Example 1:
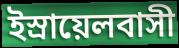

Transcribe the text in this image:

ইস্রায়েলবাসী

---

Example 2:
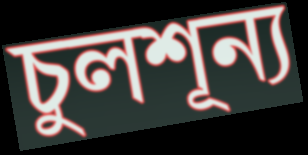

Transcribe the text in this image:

চুলশূন্য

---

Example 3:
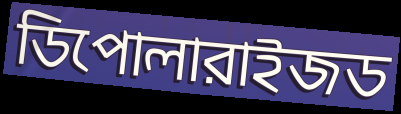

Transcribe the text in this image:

ডিপোলারাইজড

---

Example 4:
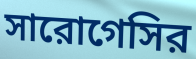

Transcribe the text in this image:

সারোগেসির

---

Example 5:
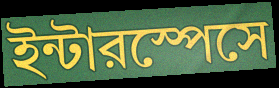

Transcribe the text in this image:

ইন্টারস্পেসে